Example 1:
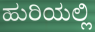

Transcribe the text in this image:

ಹುರಿಯಲ್ಲಿ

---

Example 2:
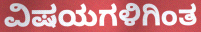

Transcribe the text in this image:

ವಿಷಯಗಳಿಗಿಂತ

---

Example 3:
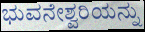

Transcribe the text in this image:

ಭುವನೇಶ್ವರಿಯನ್ನು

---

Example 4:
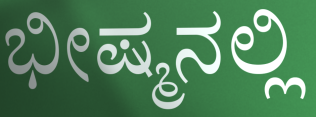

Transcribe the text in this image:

ಭೀಷ್ಮನಲ್ಲಿ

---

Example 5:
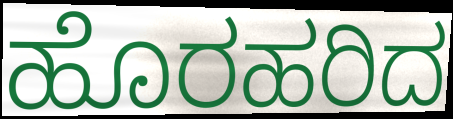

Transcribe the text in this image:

ಹೊರಹರಿದ